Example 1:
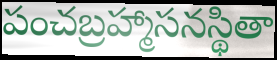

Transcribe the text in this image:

పంచబ్రహ్మాసనస్థితా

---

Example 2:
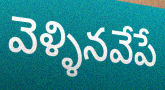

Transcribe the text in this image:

వెళ్ళినవేపే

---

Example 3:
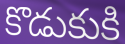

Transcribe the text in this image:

కొడుకుకి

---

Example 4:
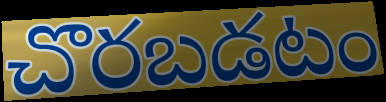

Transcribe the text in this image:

చొరబడటం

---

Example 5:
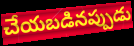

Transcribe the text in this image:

చేయబడినప్పుడు